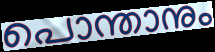
പൊന്താനും